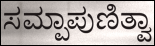
ಸಮ್ಪಾಪುಣಿತ್ವಾ